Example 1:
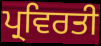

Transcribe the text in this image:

ਪ੍ਰਵਿਰਤੀ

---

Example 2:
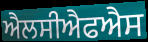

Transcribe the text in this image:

ਐਲਸੀਐਫਐਸ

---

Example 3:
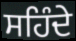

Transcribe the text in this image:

ਸਹਿੰਦੇ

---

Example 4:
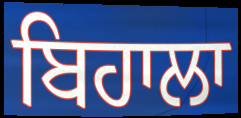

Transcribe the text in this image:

ਬਿਹਾਲਾ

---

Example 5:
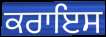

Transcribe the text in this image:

ਕਰਾਇਸ